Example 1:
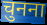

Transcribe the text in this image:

चुनना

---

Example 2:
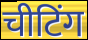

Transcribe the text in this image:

चीटिंग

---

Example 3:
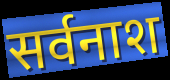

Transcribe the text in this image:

सर्वनाश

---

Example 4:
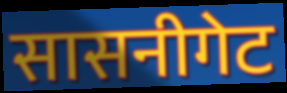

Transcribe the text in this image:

सासनीगेट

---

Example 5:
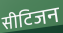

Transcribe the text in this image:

सीटिजन